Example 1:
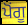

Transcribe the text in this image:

ਪੋਂਗੂ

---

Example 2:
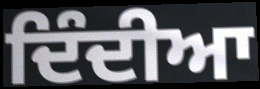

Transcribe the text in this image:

ਦਿੰਦੀਆ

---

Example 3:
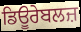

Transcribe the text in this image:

ਡਿਊਰੇਬਲਜ਼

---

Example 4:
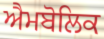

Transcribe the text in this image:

ਐਮਬੋਲਿਕ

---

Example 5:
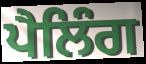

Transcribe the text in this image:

ਪੈਲਿੰਗ